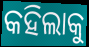
କହିଲାକୁ